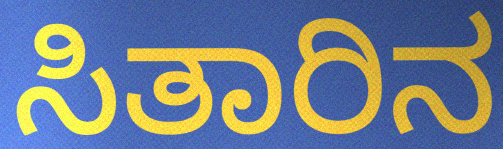
ಸಿತಾರಿನ